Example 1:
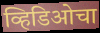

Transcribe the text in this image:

व्हिडिओचा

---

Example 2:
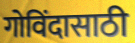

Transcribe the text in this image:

गोविंदासाठी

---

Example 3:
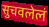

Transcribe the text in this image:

सुचवलेलं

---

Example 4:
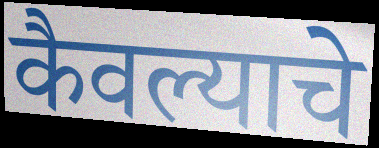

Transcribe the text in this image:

कैवल्याचे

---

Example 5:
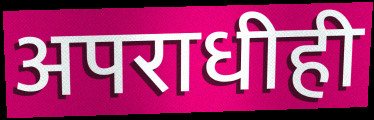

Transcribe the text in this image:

अपराधीही